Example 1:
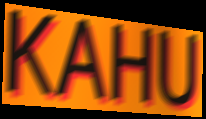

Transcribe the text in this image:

KAHU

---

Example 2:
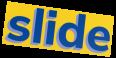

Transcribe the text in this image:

slide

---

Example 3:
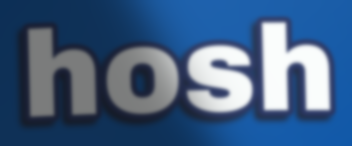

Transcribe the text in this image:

hosh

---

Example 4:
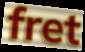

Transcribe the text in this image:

fret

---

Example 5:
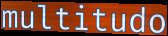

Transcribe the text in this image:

multitudo